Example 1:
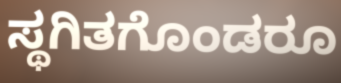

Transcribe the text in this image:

ಸ್ಥಗಿತಗೊಂಡರೂ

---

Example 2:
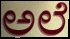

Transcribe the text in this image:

ಅಲೆ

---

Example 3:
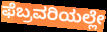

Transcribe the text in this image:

ಫೆಬ್ರವರಿಯಲ್ಲೇ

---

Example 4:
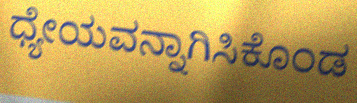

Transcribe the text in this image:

ಧ್ಯೇಯವನ್ನಾಗಿಸಿಕೊಂಡ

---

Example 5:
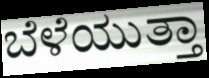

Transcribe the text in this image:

ಬೆಳೆಯುತ್ತಾ